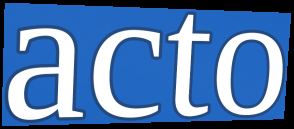
acto